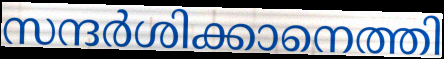
സന്ദർശിക്കാനെത്തി